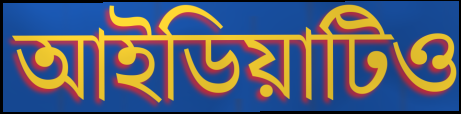
আইডিয়াটিও